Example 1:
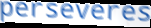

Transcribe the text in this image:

perseveres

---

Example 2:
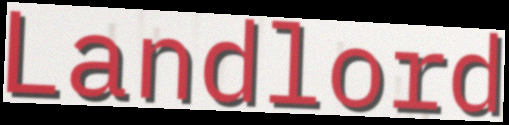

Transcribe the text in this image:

Landlord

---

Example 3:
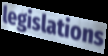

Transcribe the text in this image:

legislations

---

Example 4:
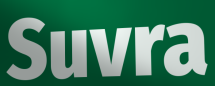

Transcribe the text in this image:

Suvra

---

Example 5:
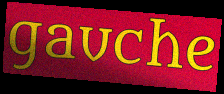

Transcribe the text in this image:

gauche